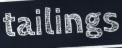
tailings